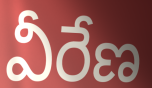
వీరేణ